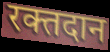
रक्तदान